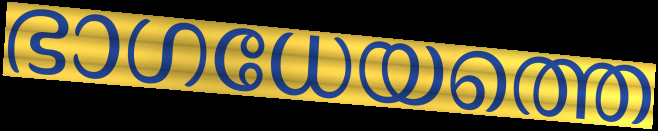
ഭാഗധേയത്തെ